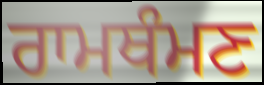
ਰਾਮਥੰਮਣ